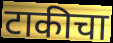
टाकीचा